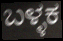
ಬಳ್ಳಕ